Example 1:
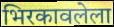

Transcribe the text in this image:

भिरकावलेला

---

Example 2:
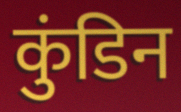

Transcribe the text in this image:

कुंडिन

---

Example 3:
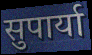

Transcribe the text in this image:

सुपार्या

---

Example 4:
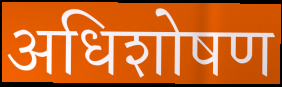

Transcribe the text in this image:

अधिशोषण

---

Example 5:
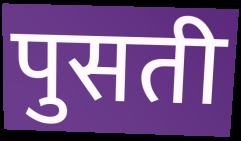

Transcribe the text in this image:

पुसती